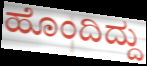
ಹೊಂದಿದ್ದು